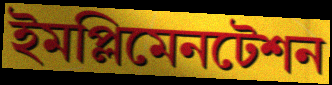
ইমপ্লিমেনটেশন